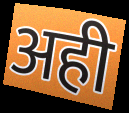
अही